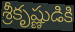
శ్రీకృష్ణుడికి